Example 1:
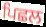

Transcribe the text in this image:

ਪਿਛਲ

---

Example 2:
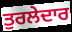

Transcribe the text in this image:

ਤੁਰਲੇਦਾਰ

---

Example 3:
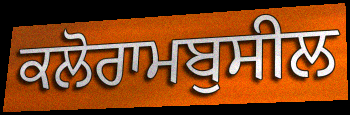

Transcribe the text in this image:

ਕਲੋਰਾਮਬੁਸੀਲ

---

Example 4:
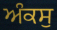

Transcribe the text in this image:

ਅੰਕਸੁ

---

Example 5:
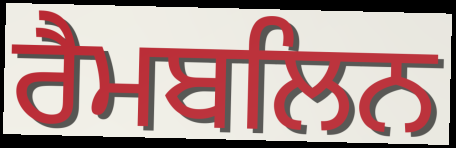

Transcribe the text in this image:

ਰੈਮਬਲਿਨ